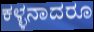
ಕಳ್ಳನಾದರೂ